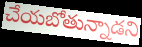
చేయబోతున్నాడని